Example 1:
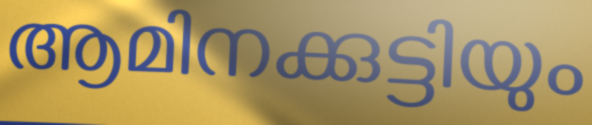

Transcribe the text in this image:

ആമിനക്കുട്ടിയും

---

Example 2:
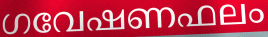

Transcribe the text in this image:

ഗവേഷണഫലം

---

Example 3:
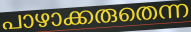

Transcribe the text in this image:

പാഴാക്കരുതെന്ന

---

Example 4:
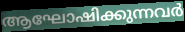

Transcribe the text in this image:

ആഘോഷിക്കുന്നവർ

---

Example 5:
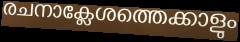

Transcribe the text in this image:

രചനാക്ലേശത്തെക്കാളും